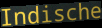
Indische